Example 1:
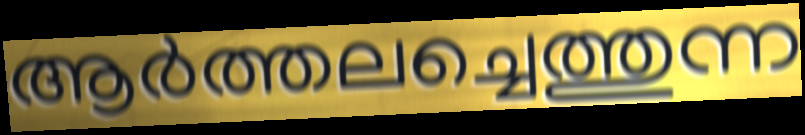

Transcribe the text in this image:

ആർത്തലച്ചെത്തുന്ന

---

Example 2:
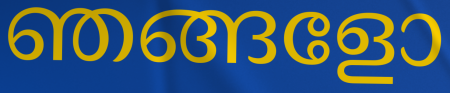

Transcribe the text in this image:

ഞങ്ങളോ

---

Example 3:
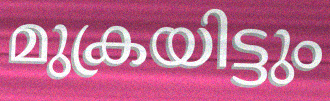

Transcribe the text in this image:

മുക്രയിട്ടും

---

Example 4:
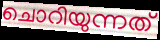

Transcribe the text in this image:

ചൊറിയുന്നത്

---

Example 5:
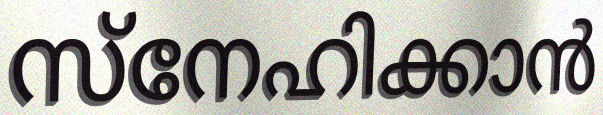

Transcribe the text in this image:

സ്നേഹിക്കാൻ